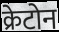
क्रेटोन